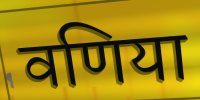
वणिया